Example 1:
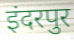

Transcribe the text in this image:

इंदरपुर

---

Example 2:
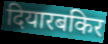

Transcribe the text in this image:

दियारबकिर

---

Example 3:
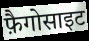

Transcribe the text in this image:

फ़ैगोसाइट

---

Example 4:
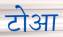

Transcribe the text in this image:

टोआ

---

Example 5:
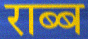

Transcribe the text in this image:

राब्ब